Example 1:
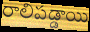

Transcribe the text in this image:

రాలిపడ్డాయి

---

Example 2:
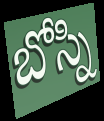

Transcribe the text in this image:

బోస్ని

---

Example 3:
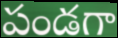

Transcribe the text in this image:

పండగా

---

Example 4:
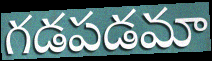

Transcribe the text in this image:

గడపడమా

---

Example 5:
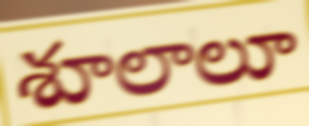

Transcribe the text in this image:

శూలాలూ